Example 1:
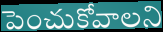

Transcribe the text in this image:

పెంచుకోవాలని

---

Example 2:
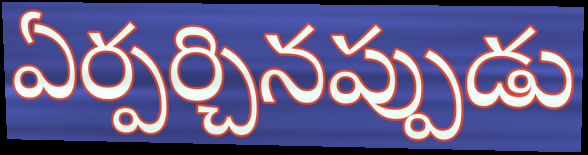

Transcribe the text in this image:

ఏర్పర్చినప్పుడు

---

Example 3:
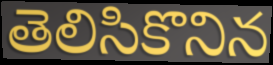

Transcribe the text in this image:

తెలిసికొనిన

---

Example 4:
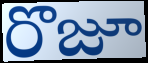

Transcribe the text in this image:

రొజూ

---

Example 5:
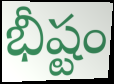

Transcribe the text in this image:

భీష్టం